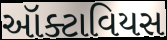
ઑક્ટાવિયસ